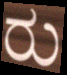
ರು